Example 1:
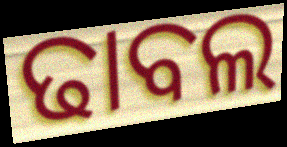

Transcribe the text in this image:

ଢାବଲ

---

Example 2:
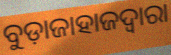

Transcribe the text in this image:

ବୁଡ଼ାଜାହାଜଦ୍ୱାରା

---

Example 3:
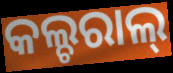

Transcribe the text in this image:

କଲ୍ଚରାଲ୍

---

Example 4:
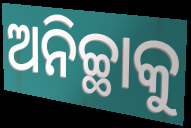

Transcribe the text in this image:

ଅନିଚ୍ଛାକୁ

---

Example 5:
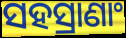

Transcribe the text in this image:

ସହସ୍ରାଣାଂ